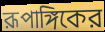
রূপাঙ্গিকের